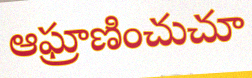
ఆఘ్రాణించుచూ